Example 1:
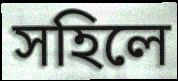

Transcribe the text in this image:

সহিলে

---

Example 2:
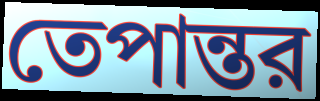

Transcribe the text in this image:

তেপান্তর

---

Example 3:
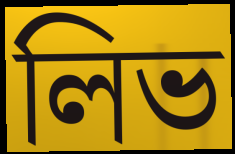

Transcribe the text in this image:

লিভ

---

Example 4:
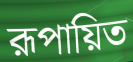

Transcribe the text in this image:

রূপায়িত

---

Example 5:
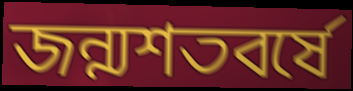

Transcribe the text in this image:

জন্মশতবর্ষে